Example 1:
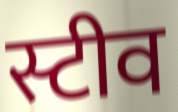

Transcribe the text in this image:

स्‍टीव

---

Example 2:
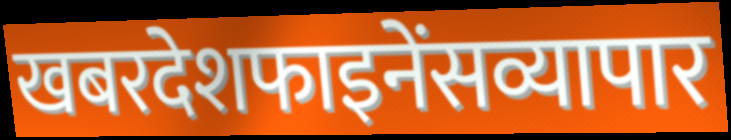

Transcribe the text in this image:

खबरदेशफाइनेंसव्यापार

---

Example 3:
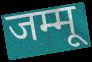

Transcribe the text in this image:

जम्मू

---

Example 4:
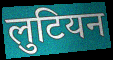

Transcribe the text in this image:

लुटियन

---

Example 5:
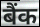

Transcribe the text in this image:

बैंक